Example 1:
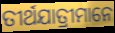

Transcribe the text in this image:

ତୀର୍ଥଯାତ୍ରୀମାନେ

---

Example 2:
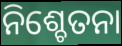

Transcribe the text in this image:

ନିଶ୍ଚେତନା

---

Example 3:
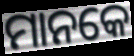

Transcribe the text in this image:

ମାନକେ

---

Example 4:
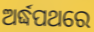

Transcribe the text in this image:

ଅର୍ଦ୍ଧପଥରେ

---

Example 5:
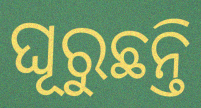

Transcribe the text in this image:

ଘୂରୁଛନ୍ତି